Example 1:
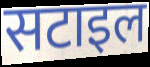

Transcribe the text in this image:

सटाइल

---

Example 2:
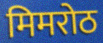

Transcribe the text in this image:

मिमरोठ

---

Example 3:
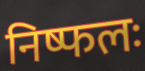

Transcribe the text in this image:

निष्फलः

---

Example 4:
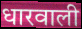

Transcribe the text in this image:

धारवाली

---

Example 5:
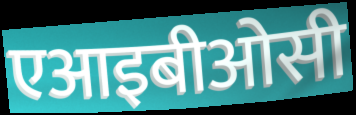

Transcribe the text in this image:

एआइबीओसी